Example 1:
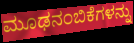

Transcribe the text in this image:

ಮೂಢನಂಬಿಕೆಗಳನ್ನು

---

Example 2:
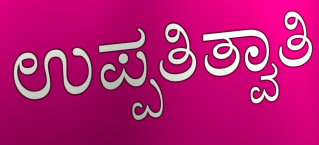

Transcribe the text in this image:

ಉಪ್ಪತಿತ್ವಾತಿ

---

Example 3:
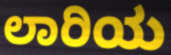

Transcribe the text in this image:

ಲಾರಿಯ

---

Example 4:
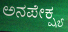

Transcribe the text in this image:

ಅನಪೇಕ್ಷ್ಯ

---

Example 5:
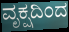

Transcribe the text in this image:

ವೃಕ್ಷದಿಂದ